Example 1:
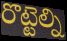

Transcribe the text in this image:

రొట్టెల్ని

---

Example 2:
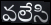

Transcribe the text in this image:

వలేసి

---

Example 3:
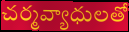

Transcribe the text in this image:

చర్మవ్యాధులతో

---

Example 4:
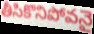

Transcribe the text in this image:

తీసికొనిపోవనై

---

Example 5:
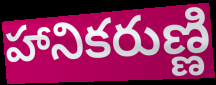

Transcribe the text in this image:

హానికరుణ్ణి